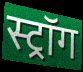
स्ट्रॉग